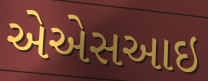
એએસઆઇ